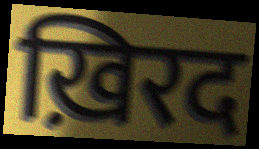
ख़िरद